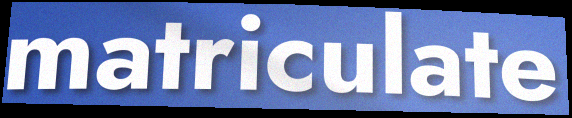
matriculate